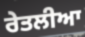
ਰੇਤਲੀਆ